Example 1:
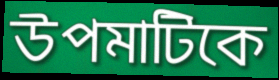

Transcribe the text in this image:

উপমাটিকে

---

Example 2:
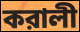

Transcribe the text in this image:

করালী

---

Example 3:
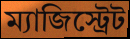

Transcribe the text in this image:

ম্যাজিস্ট্রেট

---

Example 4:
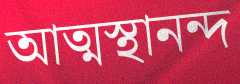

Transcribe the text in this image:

আত্মস্থানন্দ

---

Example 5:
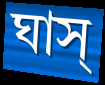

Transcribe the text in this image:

ঘাস্